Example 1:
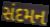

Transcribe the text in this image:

સંદમન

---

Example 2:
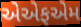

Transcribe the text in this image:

એએફએમ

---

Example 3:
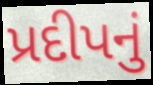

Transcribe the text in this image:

પ્રદીપનું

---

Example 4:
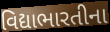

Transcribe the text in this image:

વિદ્યાભારતીના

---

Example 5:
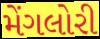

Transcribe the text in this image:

મેંગલોરી